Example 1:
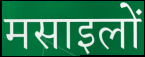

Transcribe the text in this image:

मसाइलों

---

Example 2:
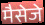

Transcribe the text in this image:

मैसेजे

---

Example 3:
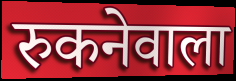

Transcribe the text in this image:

रुकनेवाला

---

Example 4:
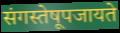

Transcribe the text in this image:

संगस्तेषूपजायते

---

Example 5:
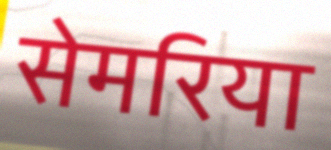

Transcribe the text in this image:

सेमरिया